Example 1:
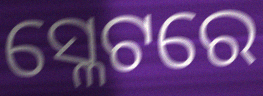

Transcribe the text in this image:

ସ୍ଳେଟରେ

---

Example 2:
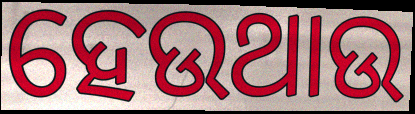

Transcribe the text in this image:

ହେଉଥାଉ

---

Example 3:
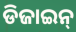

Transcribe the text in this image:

ଡିଜାଇନ୍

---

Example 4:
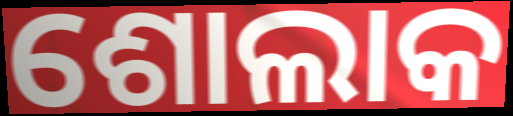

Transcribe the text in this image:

ଶୋଲାକ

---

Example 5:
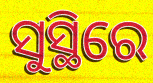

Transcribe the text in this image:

ସୁସ୍ଥିରେ